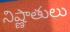
నిష్ణాతులు